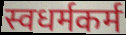
स्वधर्मकर्म